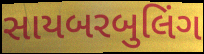
સાયબરબુલિંગ